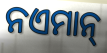
ନଏମାନ୍